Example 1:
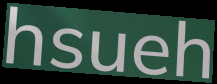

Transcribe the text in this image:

hsueh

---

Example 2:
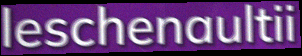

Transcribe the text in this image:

leschenaultii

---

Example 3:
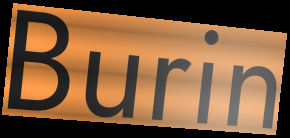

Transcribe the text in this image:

Burin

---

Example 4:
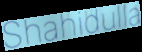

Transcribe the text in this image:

Shahidulla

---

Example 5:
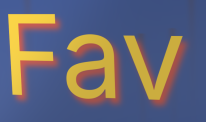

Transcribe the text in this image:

Fav